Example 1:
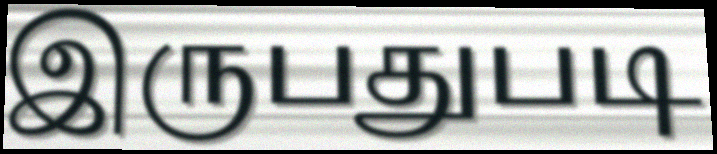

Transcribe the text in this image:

இருபதுபடி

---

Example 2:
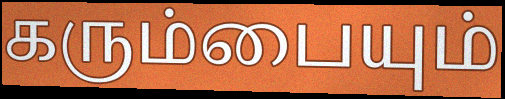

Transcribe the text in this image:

கரும்பையும்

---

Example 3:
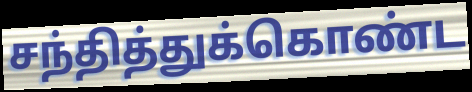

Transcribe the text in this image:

சந்தித்துக்கொண்ட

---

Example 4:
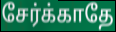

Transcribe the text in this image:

சேர்க்காதே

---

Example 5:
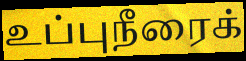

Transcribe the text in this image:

உப்புநீரைக்